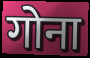
गोना